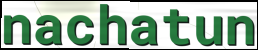
nachatun